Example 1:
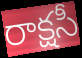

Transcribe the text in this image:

రాక్షసీ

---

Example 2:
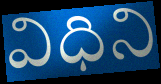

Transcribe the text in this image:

విధిని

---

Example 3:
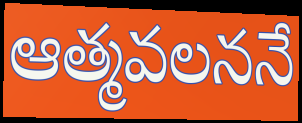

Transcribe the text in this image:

ఆత్మవలననే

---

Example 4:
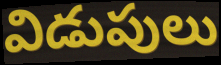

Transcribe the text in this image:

విడుపులు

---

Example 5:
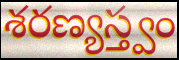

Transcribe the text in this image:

శరణ్యస్త్వం